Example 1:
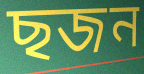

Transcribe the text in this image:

ছজন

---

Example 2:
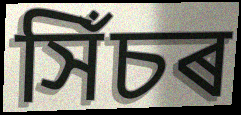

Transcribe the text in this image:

সিঁচৰ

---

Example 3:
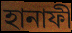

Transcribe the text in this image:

হানাফী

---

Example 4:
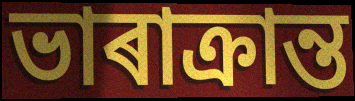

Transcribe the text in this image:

ভাৰাক্ৰান্ত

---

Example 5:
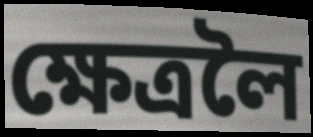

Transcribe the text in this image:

ক্ষেত্ৰলৈ